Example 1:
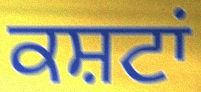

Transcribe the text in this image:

ਕਸ਼ਟਾਂ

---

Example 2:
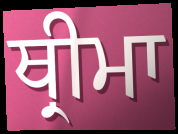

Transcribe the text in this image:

ਥ੍ਰੀਮਾ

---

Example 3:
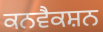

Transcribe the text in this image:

ਕਨਵੈਕਸ਼ਨ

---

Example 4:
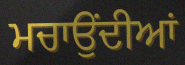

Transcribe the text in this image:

ਮਚਾਉਂਦੀਆਂ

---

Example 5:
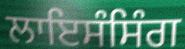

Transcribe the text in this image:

ਲਾਇਸੰਸਿੰਗ